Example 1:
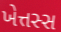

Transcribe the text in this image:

ખેત્તસ્સ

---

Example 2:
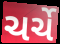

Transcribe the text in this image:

ચર્ચે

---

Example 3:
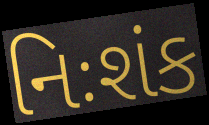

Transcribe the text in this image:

નિઃશંક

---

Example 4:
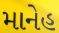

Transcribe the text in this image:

માનેહ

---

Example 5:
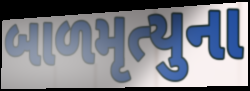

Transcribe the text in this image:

બાળમૃત્યુના